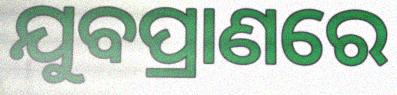
ଯୁବପ୍ରାଣରେ